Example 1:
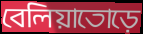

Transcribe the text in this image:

বেলিয়াতোড়ে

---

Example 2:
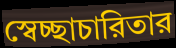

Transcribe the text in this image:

স্বেচ্ছাচারিতার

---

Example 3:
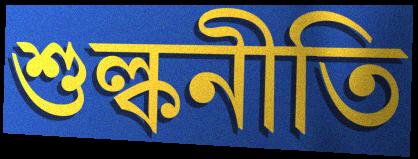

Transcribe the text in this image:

শুল্কনীতি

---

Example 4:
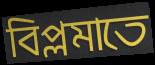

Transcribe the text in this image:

বিপ্লমাতে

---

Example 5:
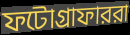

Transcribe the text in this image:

ফটোগ্রাফাররা